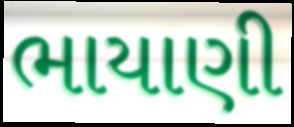
ભાયાણી